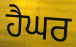
ਹੈਘਰ